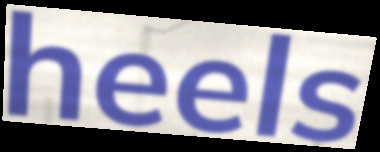
heels